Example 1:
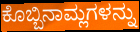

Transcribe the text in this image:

ಕೊಬ್ಬಿನಾಮ್ಲಗಳನ್ನು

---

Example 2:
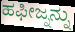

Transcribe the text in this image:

ಹಫೀಜ್ನನ್ನು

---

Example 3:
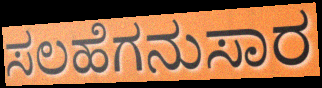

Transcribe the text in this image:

ಸಲಹೆಗನುಸಾರ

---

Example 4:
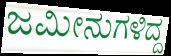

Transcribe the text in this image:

ಜಮೀನುಗಳಿದ್ದ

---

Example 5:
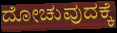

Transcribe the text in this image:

ದೋಚುವುದಕ್ಕೆ